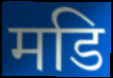
मडि